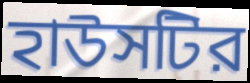
হাউসটির